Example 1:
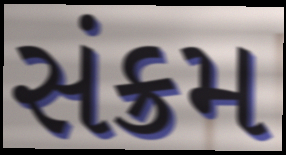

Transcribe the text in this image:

સંક્રમ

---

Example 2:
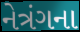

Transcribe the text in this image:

નેત્રંગના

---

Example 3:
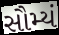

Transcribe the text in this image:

સૌમ્યં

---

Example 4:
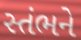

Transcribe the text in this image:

સ્તંભને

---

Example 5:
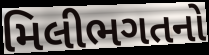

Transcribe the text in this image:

મિલીભગતનો